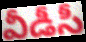
వీడీసీ